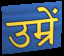
उम्रें